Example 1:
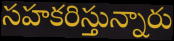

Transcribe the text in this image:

సహకరిస్తున్నారు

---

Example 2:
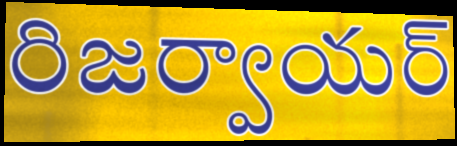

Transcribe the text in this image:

రిజర్వాయర్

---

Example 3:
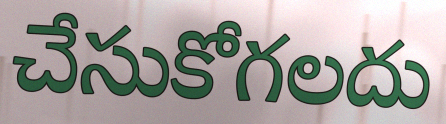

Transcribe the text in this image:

చేసుకోగలదు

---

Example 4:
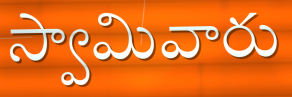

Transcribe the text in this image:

స్వామివారు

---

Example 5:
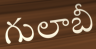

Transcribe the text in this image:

గులాబీ